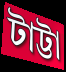
টাট্টা